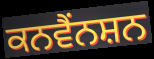
ਕਨਵੈਂਨਸ਼ਨ